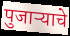
पुजाऱ्याचे